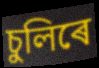
চুলিৰে